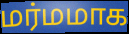
மர்மமாக